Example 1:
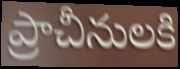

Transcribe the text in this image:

ప్రాచీనులకి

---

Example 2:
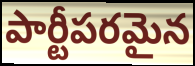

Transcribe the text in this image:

పార్టీపరమైన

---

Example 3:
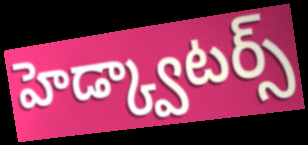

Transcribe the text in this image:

హెడ్క్వాటర్స్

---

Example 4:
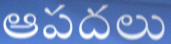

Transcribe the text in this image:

ఆపదలు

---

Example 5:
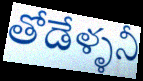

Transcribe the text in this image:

తోడేళ్ళనీ